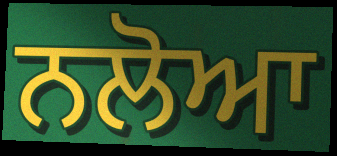
ਨਲੋਆ